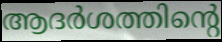
ആദർശത്തിന്റെ